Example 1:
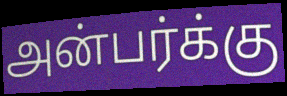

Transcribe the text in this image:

அன்பர்க்கு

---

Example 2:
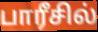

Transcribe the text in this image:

பாரீசில்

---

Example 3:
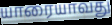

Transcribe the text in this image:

யாரையாவது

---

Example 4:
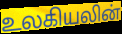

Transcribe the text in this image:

உலகியலின்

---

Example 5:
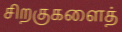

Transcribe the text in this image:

சிறகுகளைத்